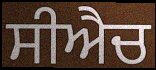
ਸੀਐਚ